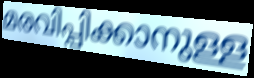
മരവിപ്പിക്കാനുള്ള